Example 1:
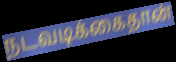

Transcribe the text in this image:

நடவடிக்கைதான்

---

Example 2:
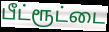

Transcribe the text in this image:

பீட்ரூட்டை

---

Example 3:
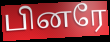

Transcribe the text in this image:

பினரே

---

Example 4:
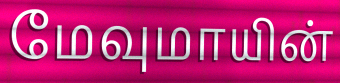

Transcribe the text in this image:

மேவுமாயின்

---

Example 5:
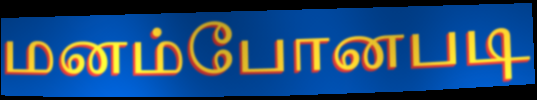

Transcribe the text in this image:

மனம்போனபடி